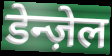
डेन्ज़ेल